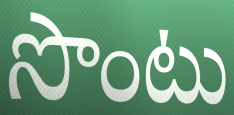
సొంటు